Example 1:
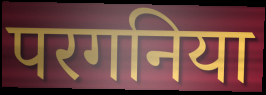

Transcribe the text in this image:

परगनिया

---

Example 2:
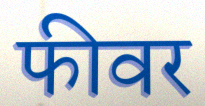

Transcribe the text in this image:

फीवर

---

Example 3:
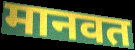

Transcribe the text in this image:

मानवत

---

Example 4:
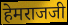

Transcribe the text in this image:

हेमराजजी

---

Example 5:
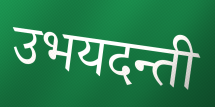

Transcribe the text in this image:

उभयदन्ती